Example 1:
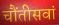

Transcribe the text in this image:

चौंतीसवां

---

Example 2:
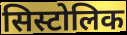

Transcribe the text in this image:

सिस्टोलिक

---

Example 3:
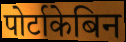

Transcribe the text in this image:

पोर्टाकेबिन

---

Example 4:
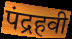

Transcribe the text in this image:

पंद्रहवी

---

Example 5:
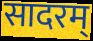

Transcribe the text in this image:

सादरम्